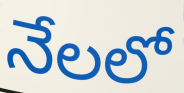
నేలలో